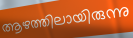
ആഴത്തിലായിരുന്നു